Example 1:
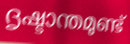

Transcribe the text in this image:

ദൃഷ്ടാന്തമുണ്ട്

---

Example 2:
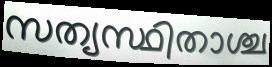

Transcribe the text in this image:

സത്യസ്ഥിതാശ്ച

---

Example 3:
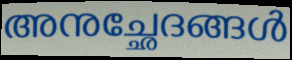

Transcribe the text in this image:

അനുച്ഛേദങ്ങൾ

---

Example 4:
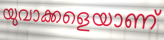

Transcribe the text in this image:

യുവാക്കളെയാണ്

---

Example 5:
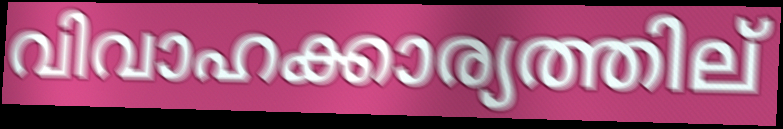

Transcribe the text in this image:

വിവാഹക്കാര്യത്തില്